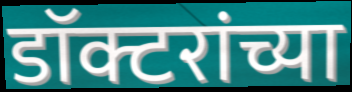
डॉक्टरांच्या